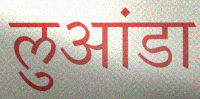
लुआंडा